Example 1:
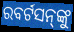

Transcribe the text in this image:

ରବର୍ଟସନ୍‌ଙ୍କୁ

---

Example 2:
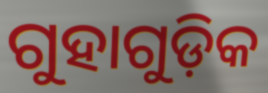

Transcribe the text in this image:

ଗୁହାଗୁଡ଼ିକ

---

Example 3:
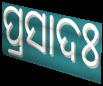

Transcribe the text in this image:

ପ୍ରସାଦଃ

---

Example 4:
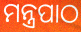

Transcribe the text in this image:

ମନ୍ତ୍ରପାଠ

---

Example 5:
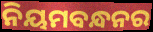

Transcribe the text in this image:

ନିୟମବନ୍ଧନର